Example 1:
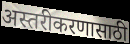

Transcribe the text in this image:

अस्तरीकरणासाठी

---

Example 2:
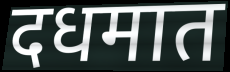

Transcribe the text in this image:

दधमात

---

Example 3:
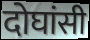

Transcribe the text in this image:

दोघांसी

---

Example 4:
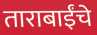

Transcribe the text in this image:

ताराबाईंचे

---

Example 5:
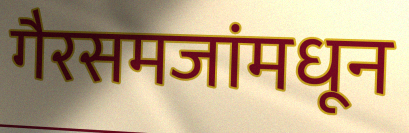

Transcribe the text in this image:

गैरसमजांमधून